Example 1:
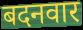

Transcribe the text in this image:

बदनवार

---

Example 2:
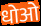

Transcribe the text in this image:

धोओ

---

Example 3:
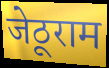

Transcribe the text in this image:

जेठूराम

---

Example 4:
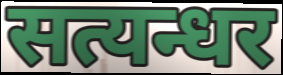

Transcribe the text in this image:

सत्यन्धर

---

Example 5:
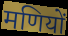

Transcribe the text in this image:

मणियों